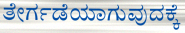
ತೇರ್ಗಡೆಯಾಗುವುದಕ್ಕೆ